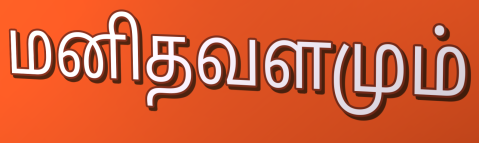
மனிதவளமும்